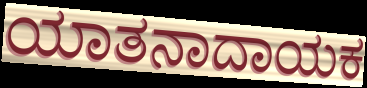
ಯಾತನಾದಾಯಕ